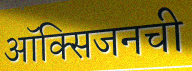
ऑक्सिजनची